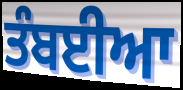
ਤੰਬਈਆ